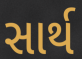
સાર્થ